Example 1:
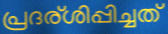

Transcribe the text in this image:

പ്രദര്ശിപ്പിച്ചത്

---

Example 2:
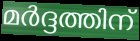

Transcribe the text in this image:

മർദ്ദത്തിന്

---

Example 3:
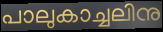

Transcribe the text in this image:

പാലുകാച്ചലിനു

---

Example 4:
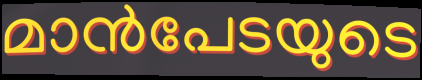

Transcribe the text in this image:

മാൻപേടയുടെ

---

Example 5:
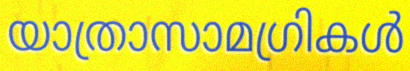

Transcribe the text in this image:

യാത്രാസാമഗ്രികൾ